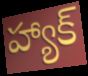
హ్యాక్